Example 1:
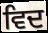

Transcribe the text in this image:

ਵਿਦ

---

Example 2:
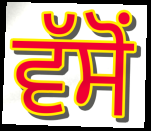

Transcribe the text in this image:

ਵੱਸੋਂ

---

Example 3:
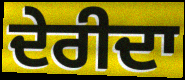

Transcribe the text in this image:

ਦੇਰੀਦਾ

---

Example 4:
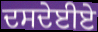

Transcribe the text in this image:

ਦਸਦੇਈਏ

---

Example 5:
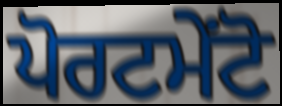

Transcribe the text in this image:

ਪੋਰਟਮੇਂਟੋ